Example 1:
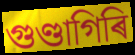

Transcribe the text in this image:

গুণ্ডাগিৰি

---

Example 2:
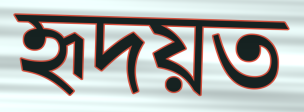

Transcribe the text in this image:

হৃদয়ত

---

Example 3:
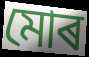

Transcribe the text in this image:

মোৰ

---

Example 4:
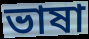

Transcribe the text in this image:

ভাষা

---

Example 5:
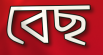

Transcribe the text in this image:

বেছ